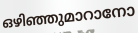
ഒഴിഞ്ഞുമാറാനോ